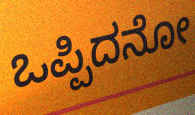
ಒಪ್ಪಿದನೋ